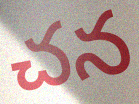
చన